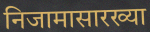
निजामासारख्या